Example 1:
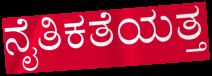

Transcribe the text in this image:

ನೈತಿಕತೆಯತ್ತ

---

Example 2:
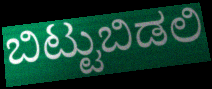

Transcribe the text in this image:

ಬಿಟ್ಟುಬಿಡಲಿ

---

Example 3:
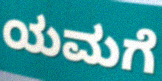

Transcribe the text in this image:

ಯಮಗೆ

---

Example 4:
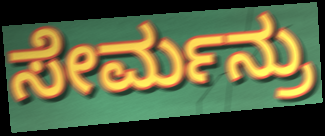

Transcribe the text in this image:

ಸೇರ್ಮನ್ರು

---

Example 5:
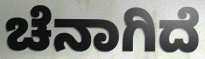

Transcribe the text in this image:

ಚೆನಾಗಿದೆ